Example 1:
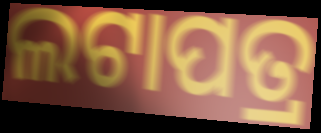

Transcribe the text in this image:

ଲଟାପତ୍ର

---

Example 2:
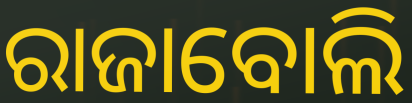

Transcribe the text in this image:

ରାଜାବୋଲି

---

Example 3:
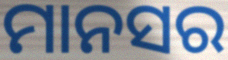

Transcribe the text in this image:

ମାନସର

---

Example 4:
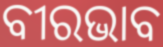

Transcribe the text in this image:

ବୀରଭାବ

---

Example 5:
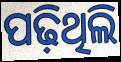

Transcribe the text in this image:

ପଢ଼ିଥିଲି